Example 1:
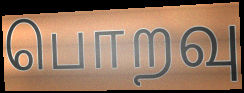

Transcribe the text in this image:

பொறவு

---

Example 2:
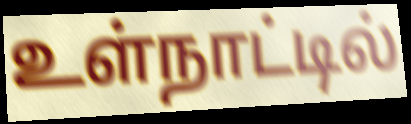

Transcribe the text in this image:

உள்நாட்டில்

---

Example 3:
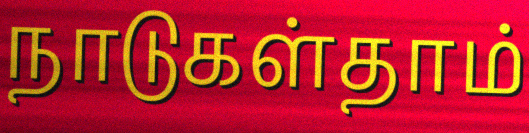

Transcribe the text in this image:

நாடுகள்தாம்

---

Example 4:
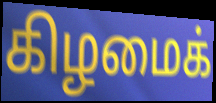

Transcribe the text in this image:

கிழமைக்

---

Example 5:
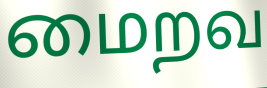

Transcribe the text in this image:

மைறவ